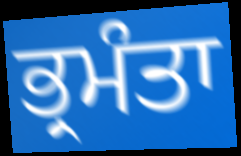
ਭ੍ਰਮੰਤਾ